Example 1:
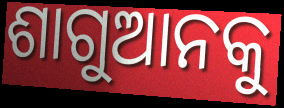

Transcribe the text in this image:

ଶାଗୁଆନକୁ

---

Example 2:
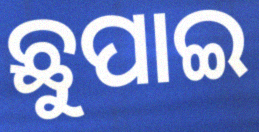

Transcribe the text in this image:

ଛୁପାଇ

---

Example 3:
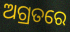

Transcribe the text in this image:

ଅଗ୍ରତରେ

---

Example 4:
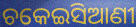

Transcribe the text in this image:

ଚକେଇସିଆଣୀ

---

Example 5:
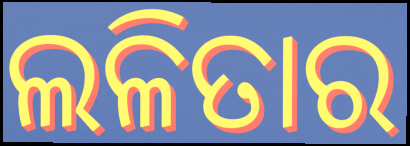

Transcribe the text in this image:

ଲଳିତାର